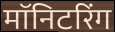
मॉनिटरिंग